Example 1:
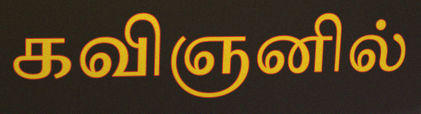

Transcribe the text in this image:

கவிஞனில்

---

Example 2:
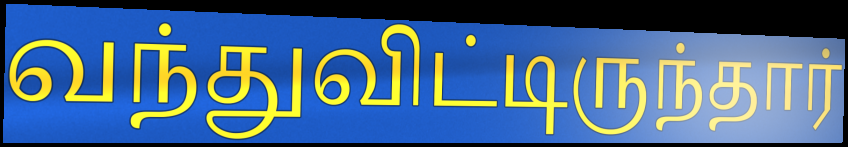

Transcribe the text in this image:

வந்துவிட்டிருந்தார்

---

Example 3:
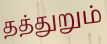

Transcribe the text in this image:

தத்துறும்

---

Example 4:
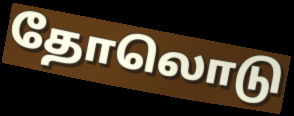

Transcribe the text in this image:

தோலொடு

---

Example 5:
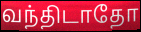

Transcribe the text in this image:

வந்திடாதோ